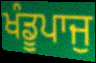
ਖੰਡੂਪਾਜੁ